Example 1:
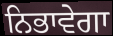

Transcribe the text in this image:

ਨਿਭਾਵੇਗਾ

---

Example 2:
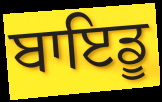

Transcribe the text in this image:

ਬਾਇਡੂ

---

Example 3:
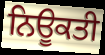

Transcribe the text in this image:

ਨਿਊਕਤੀ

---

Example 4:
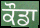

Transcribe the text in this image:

ਕੌਡਾ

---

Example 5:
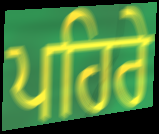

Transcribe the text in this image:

ਪਹਿਰੇ